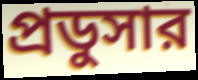
প্রডুসার